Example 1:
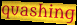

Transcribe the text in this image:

quashing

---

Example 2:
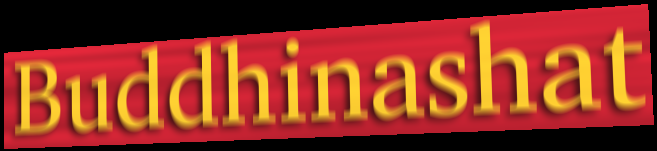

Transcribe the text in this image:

Buddhinashat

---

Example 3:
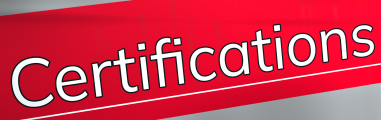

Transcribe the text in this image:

Certifications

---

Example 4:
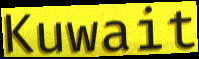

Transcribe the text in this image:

Kuwait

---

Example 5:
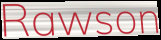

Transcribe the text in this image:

Rawson